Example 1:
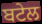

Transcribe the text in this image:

ਬਟੇਲ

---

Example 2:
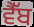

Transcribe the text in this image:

ਵੈੱਬ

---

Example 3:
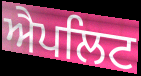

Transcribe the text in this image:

ਐਪਲਿਟ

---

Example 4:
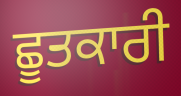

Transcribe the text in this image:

ਛੂਤਕਾਰੀ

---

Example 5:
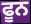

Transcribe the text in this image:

ਫੂਨ